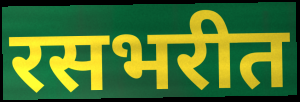
रसभरीत